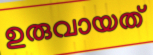
ഉരുവായത്